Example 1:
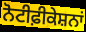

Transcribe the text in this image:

ਨੋਟੀਫ਼ੀਕੇਸ਼ਨਾਂ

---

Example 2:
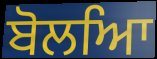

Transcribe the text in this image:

ਬੋਲਆਿ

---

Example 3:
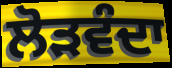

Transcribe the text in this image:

ਲੋੜਵੰਦਾ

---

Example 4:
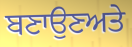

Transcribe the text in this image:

ਬਣਾਉਣਅਤੇ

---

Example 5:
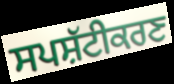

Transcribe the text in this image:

ਸਪਸ਼ੱਟੀਕਰਣ